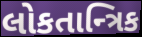
લોકતાન્ત્રિક